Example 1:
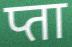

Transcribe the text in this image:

प्ता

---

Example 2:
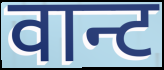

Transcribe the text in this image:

वान्ट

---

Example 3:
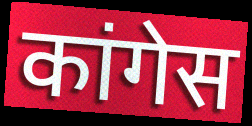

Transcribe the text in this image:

कांगेस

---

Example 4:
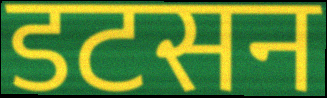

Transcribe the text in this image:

डटसन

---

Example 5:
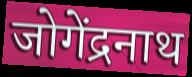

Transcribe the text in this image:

जोगेंद्रनाथ